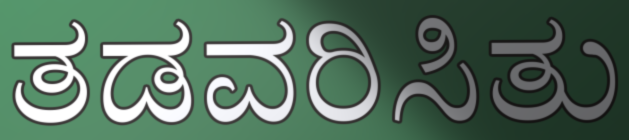
ತಡವರಿಸಿತು